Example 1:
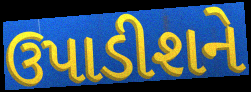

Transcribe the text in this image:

ઉપાડીશને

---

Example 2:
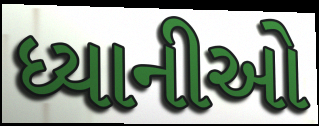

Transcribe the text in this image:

ધ્યાનીઓ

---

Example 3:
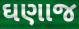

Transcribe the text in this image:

ઘણાજ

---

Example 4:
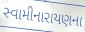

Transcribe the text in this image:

સ્વામીનારાયણના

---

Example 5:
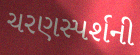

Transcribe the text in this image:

ચરણસ્પર્શની